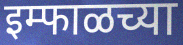
इम्फाळच्या